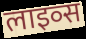
लाइव्स